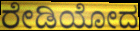
ರೇಡಿಯೋದ